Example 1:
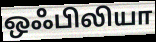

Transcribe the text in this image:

ஒஃபிலியா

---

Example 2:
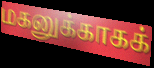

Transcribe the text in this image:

மகனுக்காகக்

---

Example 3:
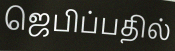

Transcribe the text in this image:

ஜெபிப்பதில்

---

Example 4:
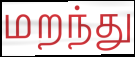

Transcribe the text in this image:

மறந்து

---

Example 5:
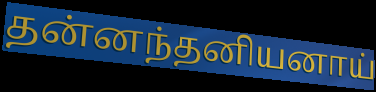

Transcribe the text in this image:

தன்னந்தனியனாய்